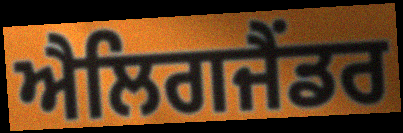
ਐਲਿਗਜੈਂਡਰ